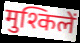
मुश्किलें